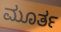
ಮೂರ್ತ